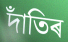
দাঁতিৰ